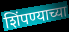
शिंपण्याच्या